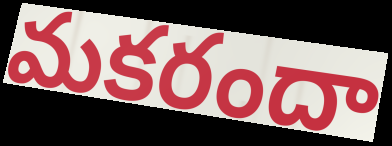
మకరందా